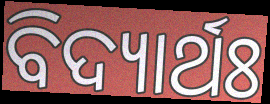
ବିଦ୍ୟାର୍ଥଃ